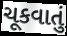
ચૂકવાતું